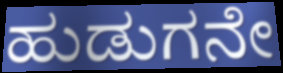
ಹುಡುಗನೇ